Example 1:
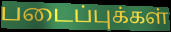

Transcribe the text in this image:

படைப்புக்கள்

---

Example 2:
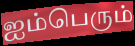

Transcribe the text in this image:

ஐம்பெரும்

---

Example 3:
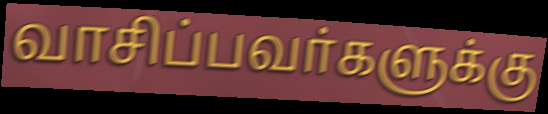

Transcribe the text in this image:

வாசிப்பவர்களுக்கு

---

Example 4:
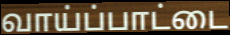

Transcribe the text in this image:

வாய்ப்பாட்டை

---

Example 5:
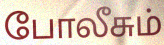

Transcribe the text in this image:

போலீசும்